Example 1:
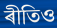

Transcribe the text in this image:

ৰীতিও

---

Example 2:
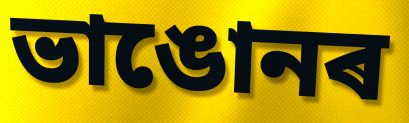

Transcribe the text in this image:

ভাঙোনৰ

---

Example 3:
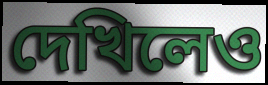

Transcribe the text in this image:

দেখিলেও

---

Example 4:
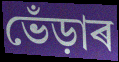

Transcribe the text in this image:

ভেঁড়াৰ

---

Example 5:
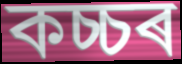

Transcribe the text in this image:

কচ্চৰ